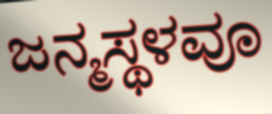
ಜನ್ಮಸ್ಥಳವೂ